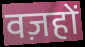
वज़हों